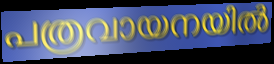
പത്രവായനയിൽ